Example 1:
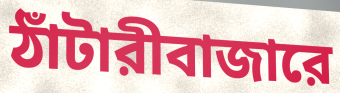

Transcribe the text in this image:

ঠাঁটারীবাজারে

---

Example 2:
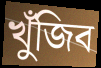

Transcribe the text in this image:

খুঁজিব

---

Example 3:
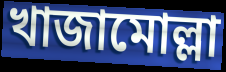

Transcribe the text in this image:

খাজামোল্লা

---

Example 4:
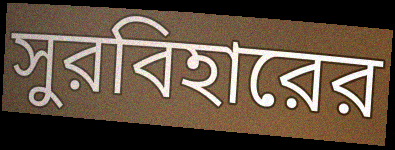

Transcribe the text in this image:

সুরবিহারের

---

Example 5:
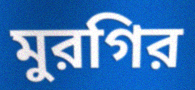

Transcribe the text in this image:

মুরগির